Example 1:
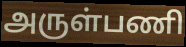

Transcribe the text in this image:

அருள்பணி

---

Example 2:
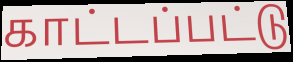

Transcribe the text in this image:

காட்டப்பட்டு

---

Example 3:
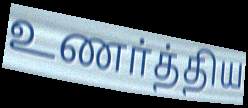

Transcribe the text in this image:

உணர்த்திய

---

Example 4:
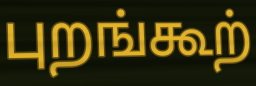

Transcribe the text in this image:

புறங்கூற்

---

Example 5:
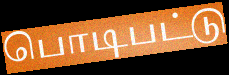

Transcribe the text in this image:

பொடிபட்டு